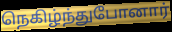
நெகிழ்ந்துபோனார்